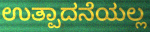
ಉತ್ಪಾದನೆಯಲ್ಲ